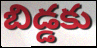
బిడ్డకు